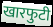
खारफुटी